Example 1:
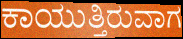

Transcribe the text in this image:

ಕಾಯುತ್ತಿರುವಾಗ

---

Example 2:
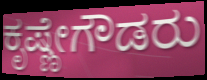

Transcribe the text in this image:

ಕೃಷ್ಣೇಗೌಡರು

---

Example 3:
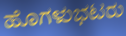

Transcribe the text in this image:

ಹೊಗಳುಭಟರು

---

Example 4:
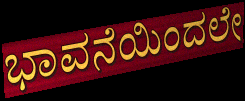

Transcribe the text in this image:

ಭಾವನೆಯಿಂದಲೇ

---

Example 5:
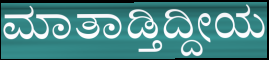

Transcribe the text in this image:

ಮಾತಾಡ್ತಿದ್ದೀಯ